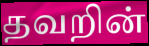
தவறின்